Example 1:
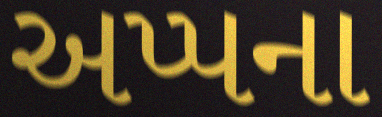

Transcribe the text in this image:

અપ્પના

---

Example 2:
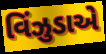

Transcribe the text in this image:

વિંઝુડાએ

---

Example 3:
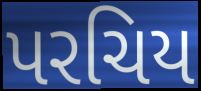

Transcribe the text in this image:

પરચિય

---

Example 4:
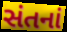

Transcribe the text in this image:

સંતનાં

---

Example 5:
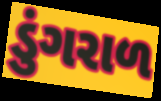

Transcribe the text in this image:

ડુંગરાળ